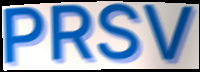
PRSV